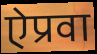
ऐप्रवा